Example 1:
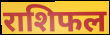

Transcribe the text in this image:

राशिफल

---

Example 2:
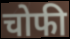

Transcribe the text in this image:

चोफी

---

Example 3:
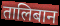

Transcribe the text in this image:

तालिबान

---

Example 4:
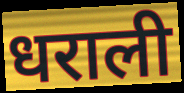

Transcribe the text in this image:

धराली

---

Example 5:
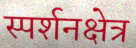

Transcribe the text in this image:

स्पर्शनक्षेत्र